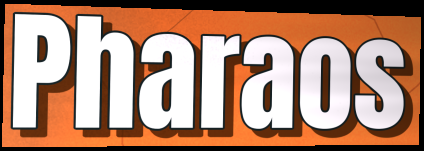
Pharaos